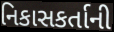
નિકાસકર્તાની